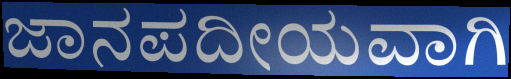
ಜಾನಪದೀಯವಾಗಿ